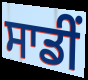
ਸਾਡੀਂ